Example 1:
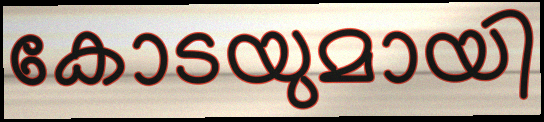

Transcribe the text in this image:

കോടയുമായി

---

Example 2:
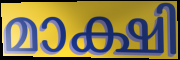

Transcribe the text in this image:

മാക്ഷി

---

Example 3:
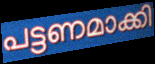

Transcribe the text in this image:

പട്ടണമാക്കി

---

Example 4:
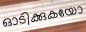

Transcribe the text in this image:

ഓടിക്കുകയോ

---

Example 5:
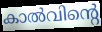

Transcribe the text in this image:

കാൽവിന്റെ